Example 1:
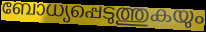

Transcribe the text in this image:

ബോധ്യപ്പെടുത്തുകയും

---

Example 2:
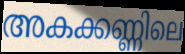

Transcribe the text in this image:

അകക്കണ്ണിലെ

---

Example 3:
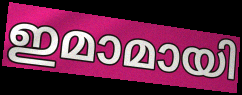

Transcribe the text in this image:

ഇമാമായി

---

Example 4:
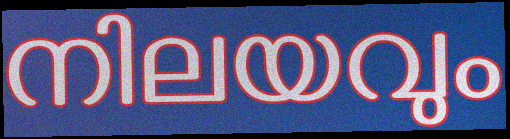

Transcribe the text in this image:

നിലയവും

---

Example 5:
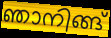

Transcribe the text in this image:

ഞാനിങ്ങ്